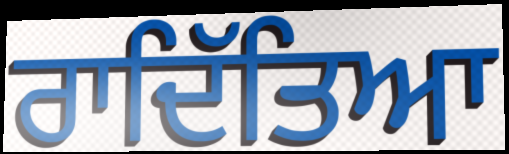
ਰਾਦਿੱਤਿਆ